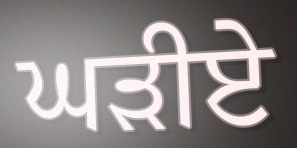
ਘੜੀਏ